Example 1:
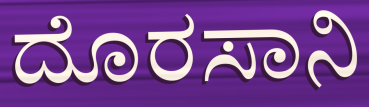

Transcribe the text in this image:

ದೊರಸಾನಿ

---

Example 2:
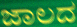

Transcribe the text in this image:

ಜಾಲದ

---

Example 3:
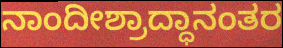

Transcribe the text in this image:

ನಾಂದೀಶ್ರಾದ್ಧಾನಂತರ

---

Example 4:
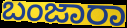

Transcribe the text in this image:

ಬಂಜಾರಾ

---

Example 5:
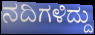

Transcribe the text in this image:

ನದಿಗಳಿದ್ದು